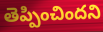
తెప్పించిందని